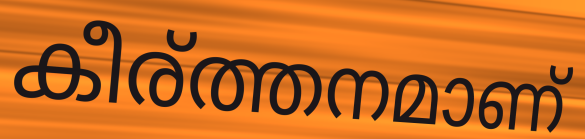
കീര്ത്തനമാണ്